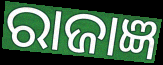
ରାଜାଜ୍ଞ